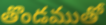
తొండముతో